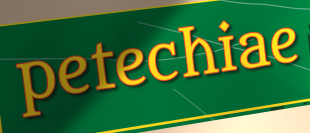
petechiae